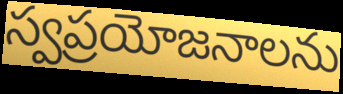
స్వప్రయోజనాలను